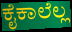
ಕೈಕಾಲೆಲ್ಲ